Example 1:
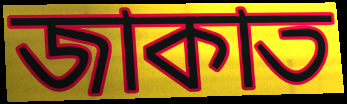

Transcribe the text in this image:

জাকাত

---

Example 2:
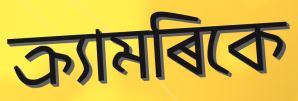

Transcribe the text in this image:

ক্ৰ্যামৰিকে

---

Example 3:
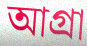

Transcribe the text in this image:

আগ্ৰা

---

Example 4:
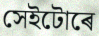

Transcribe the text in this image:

সেইটোৰে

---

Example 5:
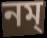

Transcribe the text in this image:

নম্